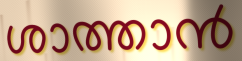
ശാത്താൻ